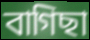
বাগিছা